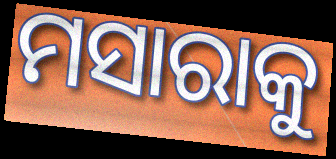
ମସାରାକୁ